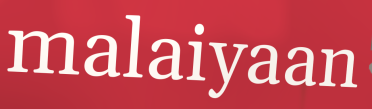
malaiyaan